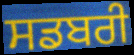
ਸਡਬਰੀ